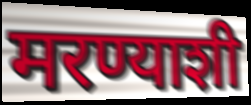
मरण्याशी